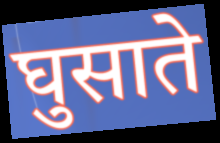
घुसाते